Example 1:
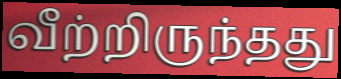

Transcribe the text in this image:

வீற்றிருந்தது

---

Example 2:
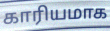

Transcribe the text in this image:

காரியமாக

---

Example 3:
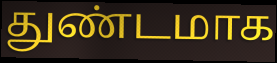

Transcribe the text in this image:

துண்டமாக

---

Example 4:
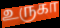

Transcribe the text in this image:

உருகா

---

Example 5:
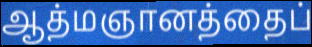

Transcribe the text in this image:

ஆத்மஞானத்தைப்